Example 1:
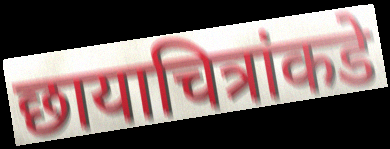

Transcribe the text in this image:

छायाचित्रांकडे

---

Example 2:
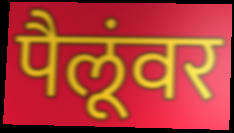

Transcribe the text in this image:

पैलूंवर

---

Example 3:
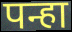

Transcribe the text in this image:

पन्हा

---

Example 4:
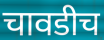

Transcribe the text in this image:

चावडीच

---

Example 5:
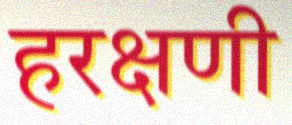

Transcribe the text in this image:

हरक्षणी